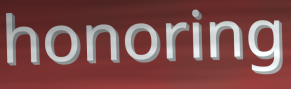
honoring